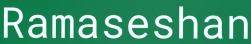
Ramaseshan